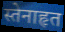
स्तेनाहृत